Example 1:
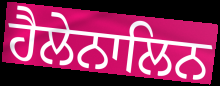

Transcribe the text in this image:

ਹੈਲੇਨਾਲਿਨ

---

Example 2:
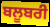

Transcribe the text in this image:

ਬਲੂਬਰੀ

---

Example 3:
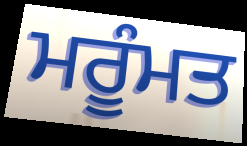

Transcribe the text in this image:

ਮਰੂੰਮਤ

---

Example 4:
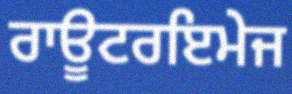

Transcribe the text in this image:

ਰਾਊਟਰਇਮੇਜ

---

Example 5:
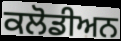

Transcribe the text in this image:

ਕਲੋਡੀਅਨ